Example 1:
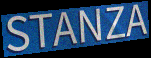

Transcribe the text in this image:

STANZA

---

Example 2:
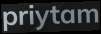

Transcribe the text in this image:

priytam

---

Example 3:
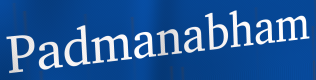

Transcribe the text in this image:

Padmanabham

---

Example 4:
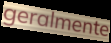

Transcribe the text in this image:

geralmente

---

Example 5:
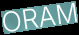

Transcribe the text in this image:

ORAM